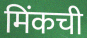
मिंकची